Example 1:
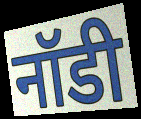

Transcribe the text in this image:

नॉडी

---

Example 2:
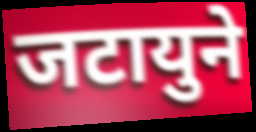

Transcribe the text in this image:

जटायुने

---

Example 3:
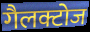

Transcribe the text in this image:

गैलक्टोज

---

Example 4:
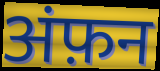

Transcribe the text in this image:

अंफ़न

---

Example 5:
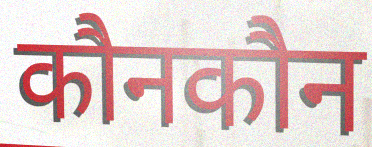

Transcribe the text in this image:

कौनकौन